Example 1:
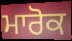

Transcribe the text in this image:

ਮਾਰੋਕ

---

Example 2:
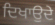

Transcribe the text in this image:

ਦਿਖਾਉਦੇ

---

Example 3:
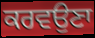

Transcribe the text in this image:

ਕਰਵਉਣਾ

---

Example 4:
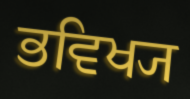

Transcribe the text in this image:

ਭਵਿਖ੍ਯ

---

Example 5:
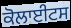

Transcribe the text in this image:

ਕੋਲਾਈਟਸ